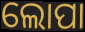
ଲୋପା